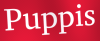
Puppis